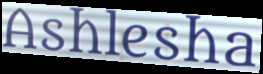
Ashlesha